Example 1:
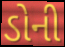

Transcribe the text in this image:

ડોની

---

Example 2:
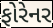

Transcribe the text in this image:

ફોરેનર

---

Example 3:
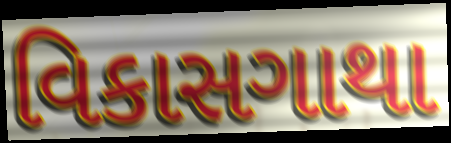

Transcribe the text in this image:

વિકાસગાથા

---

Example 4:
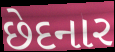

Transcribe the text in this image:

છેદનાર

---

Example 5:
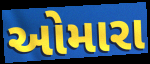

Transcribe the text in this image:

ઓમારા